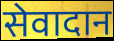
सेवादान